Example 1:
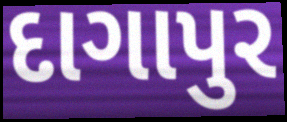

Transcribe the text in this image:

દાગાપુર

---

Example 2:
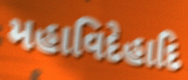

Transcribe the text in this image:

મહાવિદેહાદિ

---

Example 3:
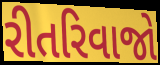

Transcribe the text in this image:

રીતરિવાજો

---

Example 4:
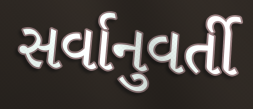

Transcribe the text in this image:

સર્વાનુવર્તી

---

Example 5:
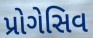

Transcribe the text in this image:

પ્રોગેસિવ